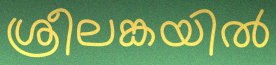
ശ്രീലങ്കയിൽ